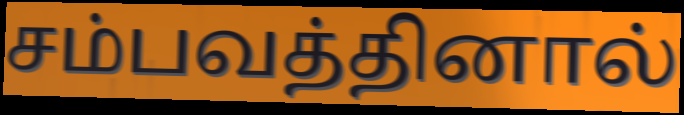
சம்பவத்தினால்